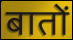
बातों